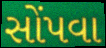
સોંપવા